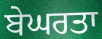
ਬੇਘਰਤਾ